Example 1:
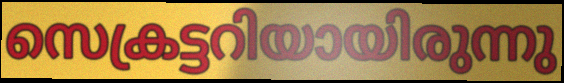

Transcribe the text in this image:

സെക്രട്ടറിയായിരുന്നു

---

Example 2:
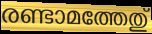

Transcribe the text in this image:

രണ്ടാമത്തേതു്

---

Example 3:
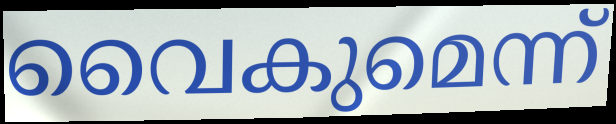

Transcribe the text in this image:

വൈകുമെന്ന്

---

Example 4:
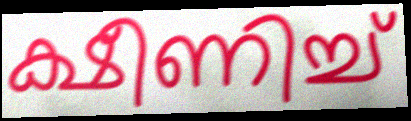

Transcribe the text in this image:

ക്ഷീണിച്ച്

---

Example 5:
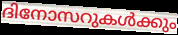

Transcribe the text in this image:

ദിനോസറുകൾക്കും